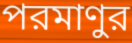
পরমাণুর